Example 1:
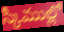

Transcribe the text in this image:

స్కీముల్లో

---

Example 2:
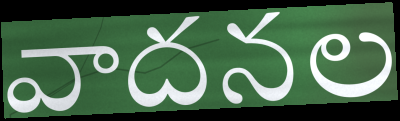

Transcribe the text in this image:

వాదనల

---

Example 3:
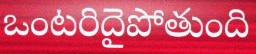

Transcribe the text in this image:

ఒంటరిదైపోతుంది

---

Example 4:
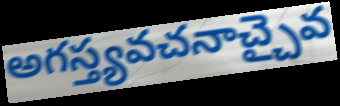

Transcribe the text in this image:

అగస్త్యవచనాచ్చైవ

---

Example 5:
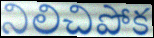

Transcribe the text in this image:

నిలిచిపోక